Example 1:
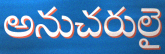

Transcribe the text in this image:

అనుచరులై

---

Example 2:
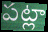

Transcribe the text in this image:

పట్లా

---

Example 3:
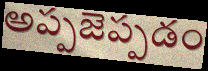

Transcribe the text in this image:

అప్పజెప్పడం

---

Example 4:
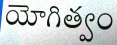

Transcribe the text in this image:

యోగిత్వం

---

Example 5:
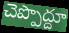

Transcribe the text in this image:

చెప్పొద్దూ